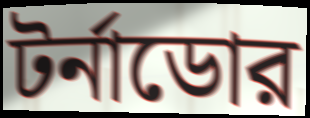
টর্নাডোর